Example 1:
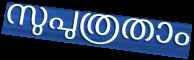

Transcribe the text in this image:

സുപുത്രതാം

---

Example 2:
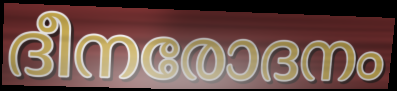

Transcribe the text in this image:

ദീനരോദനം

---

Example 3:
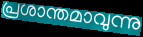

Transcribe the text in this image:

പ്രശാന്തമാവുന്നു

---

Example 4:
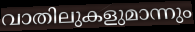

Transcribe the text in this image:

വാതിലുകളുമാന്നും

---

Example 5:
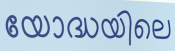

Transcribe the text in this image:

യോദ്ധയിലെ